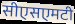
सीएसएमटी